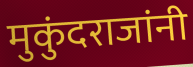
मुकुंदराजांनी